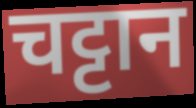
चट्टान